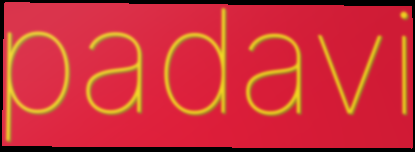
padavi